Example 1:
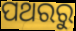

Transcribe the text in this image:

ପଥରରୁ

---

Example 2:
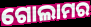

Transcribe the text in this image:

ଗୋଲାମର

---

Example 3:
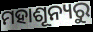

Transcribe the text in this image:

ମହାଶୂନ୍ୟରୁ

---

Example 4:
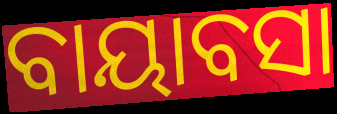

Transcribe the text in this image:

ବାୟାବସା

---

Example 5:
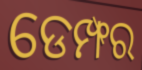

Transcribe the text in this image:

ଡେମ୍ଫର